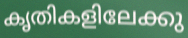
കൃതികളിലേക്കു